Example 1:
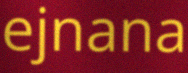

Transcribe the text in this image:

ejnana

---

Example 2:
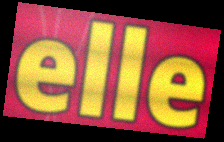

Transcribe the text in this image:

elle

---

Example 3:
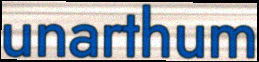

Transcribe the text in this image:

unarthum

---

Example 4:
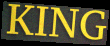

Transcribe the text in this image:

KING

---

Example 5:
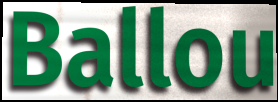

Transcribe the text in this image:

Ballou